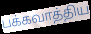
பக்கவாத்திய